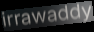
irrawaddy